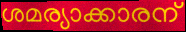
ശമര്യാക്കാരന്